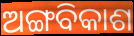
ଅଙ୍ଗବିକାଶ